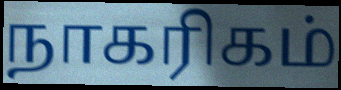
நாகரிகம்